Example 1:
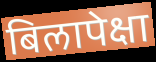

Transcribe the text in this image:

बिलापेक्षा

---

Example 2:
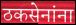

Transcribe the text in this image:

ठकसेनांना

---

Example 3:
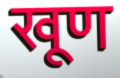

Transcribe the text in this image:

खूण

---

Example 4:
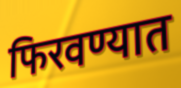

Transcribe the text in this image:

फिरवण्यात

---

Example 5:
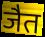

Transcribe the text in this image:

जैत